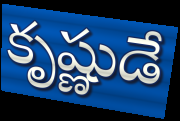
కృష్ణుడే